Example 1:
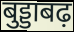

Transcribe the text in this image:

बुड्डाबढ़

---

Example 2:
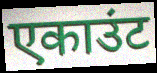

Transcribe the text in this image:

एकाउंट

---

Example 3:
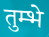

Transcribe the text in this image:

तुम्भे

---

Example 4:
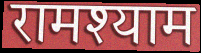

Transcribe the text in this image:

रामश्याम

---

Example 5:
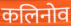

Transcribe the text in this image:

कलिनोव